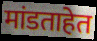
मांडताहेत